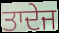
ਤਾਦੇਜ